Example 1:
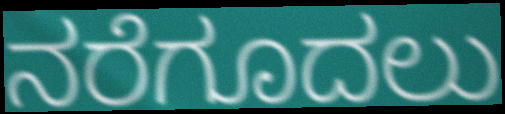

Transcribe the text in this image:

ನರೆಗೂದಲು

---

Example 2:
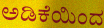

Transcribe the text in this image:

ಅಡಿಕೆಯಿಂದ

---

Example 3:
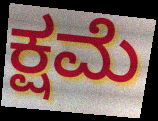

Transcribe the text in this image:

ಕ್ಷಮೆ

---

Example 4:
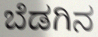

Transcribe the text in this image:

ಬೆಡಗಿನ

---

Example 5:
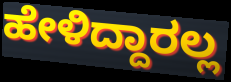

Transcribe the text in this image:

ಹೇಳಿದ್ದಾರಲ್ಲ